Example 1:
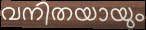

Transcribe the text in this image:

വനിതയായും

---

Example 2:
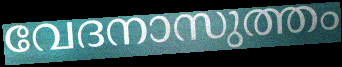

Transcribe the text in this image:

വേദനാസുത്തം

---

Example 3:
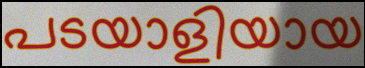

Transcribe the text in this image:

പടയാളിയായ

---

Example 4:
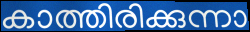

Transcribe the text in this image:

കാത്തിരിക്കുന്നാ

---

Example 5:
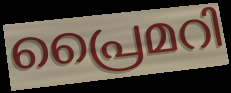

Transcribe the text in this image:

പ്രൈമറി